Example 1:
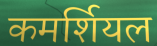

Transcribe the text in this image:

कमर्शियल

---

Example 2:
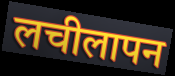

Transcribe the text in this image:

लचीलापन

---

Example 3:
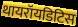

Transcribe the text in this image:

थायरॉयडिटिस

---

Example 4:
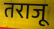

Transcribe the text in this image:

तराजू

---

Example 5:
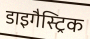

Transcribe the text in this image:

डाइगैस्ट्रिक